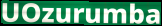
UOzurumba